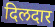
दिलदार